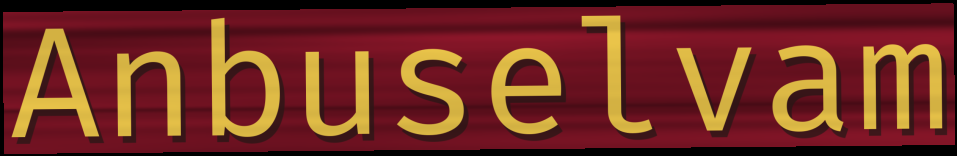
Anbuselvam